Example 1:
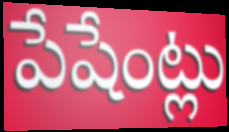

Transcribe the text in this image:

పేషేంట్లు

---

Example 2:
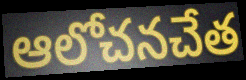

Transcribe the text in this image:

ఆలోచనచేత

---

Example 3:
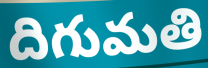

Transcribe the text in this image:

దిగుమతి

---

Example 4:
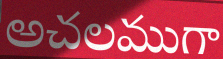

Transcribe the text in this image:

అచలముగా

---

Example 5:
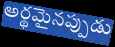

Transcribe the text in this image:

అర్థమైనప్పుడు